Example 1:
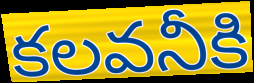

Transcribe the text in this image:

కలవనీకి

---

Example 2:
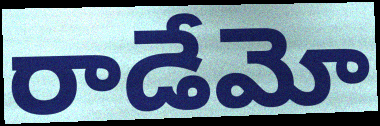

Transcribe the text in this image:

రాడేమో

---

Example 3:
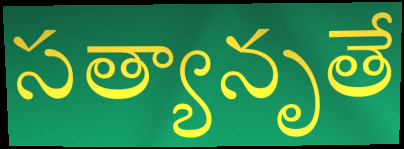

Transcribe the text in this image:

సత్యానృతే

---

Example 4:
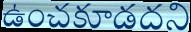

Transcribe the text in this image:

ఉంచకూడదని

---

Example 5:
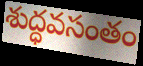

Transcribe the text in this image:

శుద్ధవసంతం